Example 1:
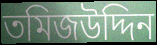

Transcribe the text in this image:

তমিজউদ্দিন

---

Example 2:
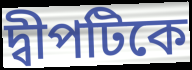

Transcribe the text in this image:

দ্বীপটিকে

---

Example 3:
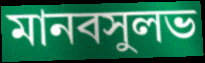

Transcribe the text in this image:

মানবসুলভ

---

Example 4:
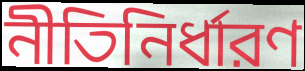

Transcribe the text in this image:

নীতিনির্ধারণ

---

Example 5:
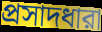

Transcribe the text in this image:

প্রসাদধারা